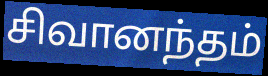
சிவானந்தம்